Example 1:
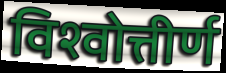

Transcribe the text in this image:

विश्वोत्तीर्ण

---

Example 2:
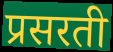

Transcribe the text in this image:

प्रसरती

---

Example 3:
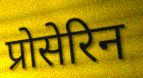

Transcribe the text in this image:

प्रोसेरिन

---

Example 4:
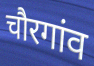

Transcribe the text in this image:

चौरगांव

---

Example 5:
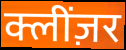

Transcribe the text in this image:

क्लींज़र